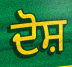
ਦੋਸ਼